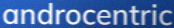
androcentric